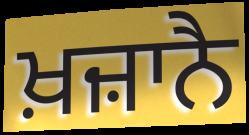
ਖ਼ਜ਼ਾਨੈ